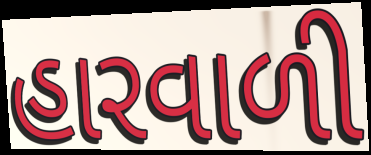
હારવાળી